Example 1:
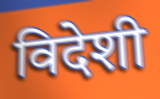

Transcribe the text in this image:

विदेशी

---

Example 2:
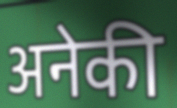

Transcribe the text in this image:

अनेकी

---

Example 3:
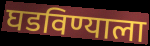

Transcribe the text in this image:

घडविण्याला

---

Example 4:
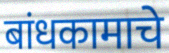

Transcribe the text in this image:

बांधकामाचे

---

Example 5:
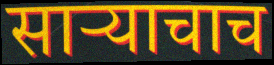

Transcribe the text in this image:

साऱ्याचाच